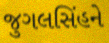
જુગલસિંહને